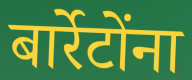
बार्रेटोंना